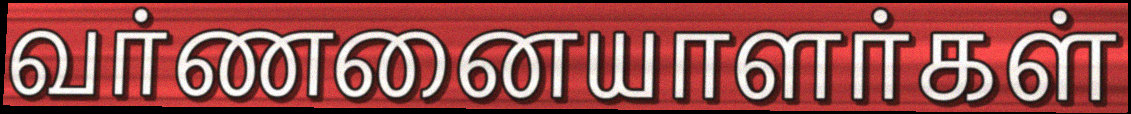
வர்ணனையாளர்கள்